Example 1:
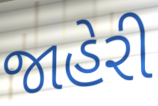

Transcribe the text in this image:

જાહેરી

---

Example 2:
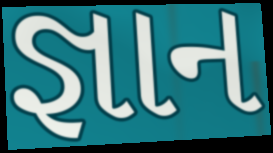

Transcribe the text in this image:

જ્ઞાન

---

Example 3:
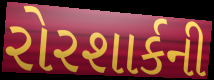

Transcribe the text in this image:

રોરશાર્કની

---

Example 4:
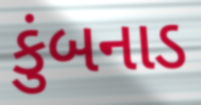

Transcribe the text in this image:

કુંબનાડ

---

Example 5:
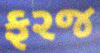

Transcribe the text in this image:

ફરજ